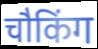
चौकिंग